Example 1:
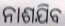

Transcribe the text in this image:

ନାଶଯିବ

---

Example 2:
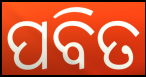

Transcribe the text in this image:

ପବିତ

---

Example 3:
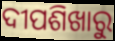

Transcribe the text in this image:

ଦୀପଶିଖାରୁ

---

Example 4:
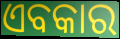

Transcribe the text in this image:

ଏବକାର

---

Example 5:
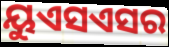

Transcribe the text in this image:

ୟୁଏସଏସର